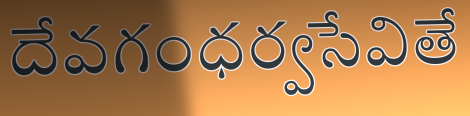
దేవగంధర్వసేవితే